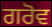
ਗਰੋਵ